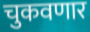
चुकवणार